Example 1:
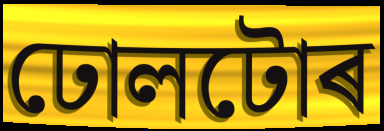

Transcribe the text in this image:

ঢোলটোৰ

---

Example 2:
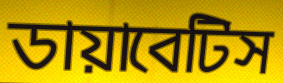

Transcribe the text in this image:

ডায়াবেটিস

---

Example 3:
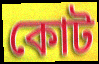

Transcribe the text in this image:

কোট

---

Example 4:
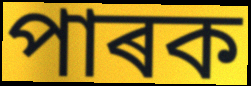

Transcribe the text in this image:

পাৰক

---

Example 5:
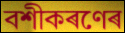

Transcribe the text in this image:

বশীকৰণেৰ